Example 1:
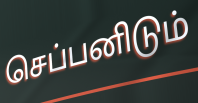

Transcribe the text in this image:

செப்பனிடும்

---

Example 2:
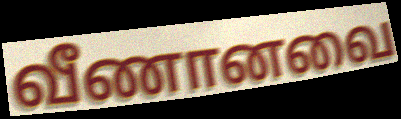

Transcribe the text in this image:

வீணானவை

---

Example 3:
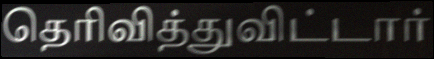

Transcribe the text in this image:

தெரிவித்துவிட்டார்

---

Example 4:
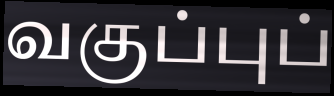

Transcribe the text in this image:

வகுப்புப்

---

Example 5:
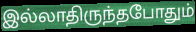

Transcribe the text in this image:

இல்லாதிருந்தபோதும்